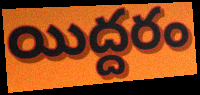
యిద్దరం